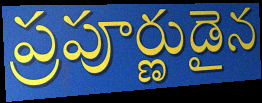
ప్రపూర్ణుడైన